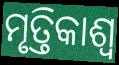
ମୃତ୍ତିକାଶ୍ୱ